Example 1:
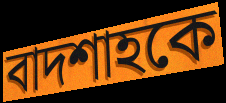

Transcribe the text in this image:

বাদশাহকে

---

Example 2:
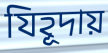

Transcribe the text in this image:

যিহূদায়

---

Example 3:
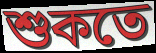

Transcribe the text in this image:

শুকতে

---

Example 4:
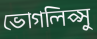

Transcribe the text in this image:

ভোগলিপ্সু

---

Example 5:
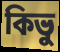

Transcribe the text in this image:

কিভু